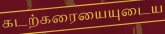
கடற்கரையையுடைய